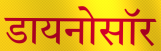
डायनोसॉर